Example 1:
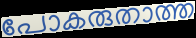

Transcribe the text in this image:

പോകരുതാത്ത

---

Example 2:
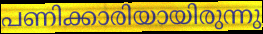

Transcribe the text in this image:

പണിക്കാരിയായിരുന്നു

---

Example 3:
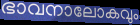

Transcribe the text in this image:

ഭാവനാലോകവും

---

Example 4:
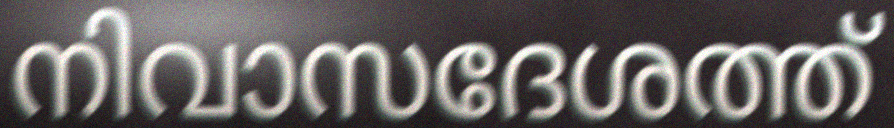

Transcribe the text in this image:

നിവാസദേശത്ത്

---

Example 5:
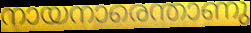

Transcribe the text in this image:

നായനാരെന്താണു